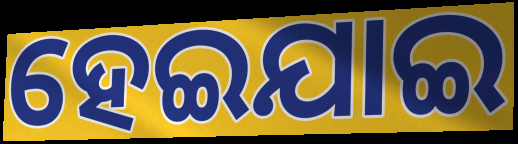
ହେଇଯାଇ